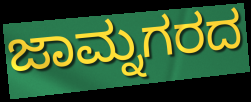
ಜಾಮ್ನಗರದ